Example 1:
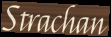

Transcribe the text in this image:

Strachan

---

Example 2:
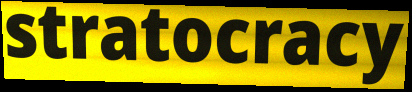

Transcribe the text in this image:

stratocracy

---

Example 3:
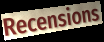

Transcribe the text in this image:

Recensions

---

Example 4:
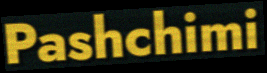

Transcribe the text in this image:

Pashchimi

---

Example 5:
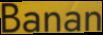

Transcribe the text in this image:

Banan